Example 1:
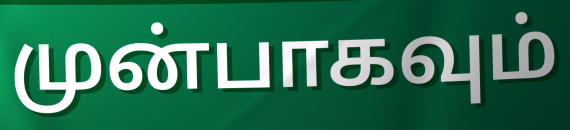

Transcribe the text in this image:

முன்பாகவும்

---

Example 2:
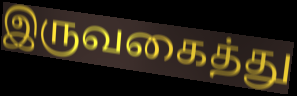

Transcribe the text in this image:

இருவகைத்து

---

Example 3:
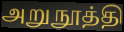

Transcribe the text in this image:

அறுநூத்தி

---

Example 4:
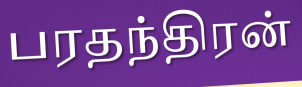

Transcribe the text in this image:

பரதந்திரன்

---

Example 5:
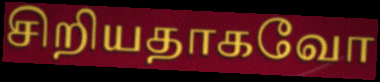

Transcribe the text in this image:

சிறியதாகவோ